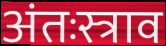
अंतःस्त्राव